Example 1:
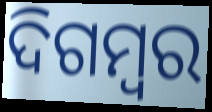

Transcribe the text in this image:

ଦିଗମ୍ୱର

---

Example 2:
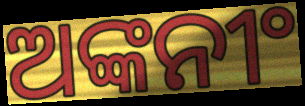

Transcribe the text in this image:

ଅଙ୍କନୀଂ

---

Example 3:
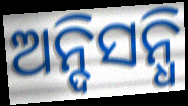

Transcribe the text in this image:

ଅନ୍ଦିସନ୍ଧି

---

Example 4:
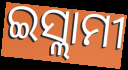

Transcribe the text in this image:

ଇସ୍ଲାମୀ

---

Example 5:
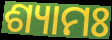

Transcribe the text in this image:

ଶ୍ୟାମଃ